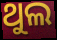
ଥୁଲ